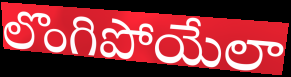
లొంగిపోయేలా